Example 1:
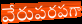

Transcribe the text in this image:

వేరుపరపగా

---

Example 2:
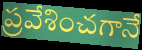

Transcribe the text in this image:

ప్రవేశించగానే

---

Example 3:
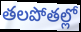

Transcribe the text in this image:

తలపోతల్లో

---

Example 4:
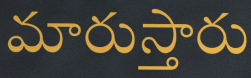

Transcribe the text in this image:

మారుస్తారు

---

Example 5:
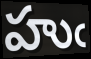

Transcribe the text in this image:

హుఁ